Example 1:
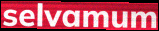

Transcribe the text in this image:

selvamum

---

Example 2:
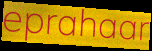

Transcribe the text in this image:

eprahaar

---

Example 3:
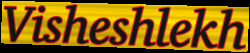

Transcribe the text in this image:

Visheshlekh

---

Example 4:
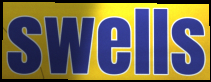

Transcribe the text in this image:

swells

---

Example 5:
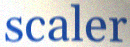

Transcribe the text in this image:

scaler